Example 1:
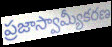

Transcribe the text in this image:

ప్రజాస్వామ్యీకరణ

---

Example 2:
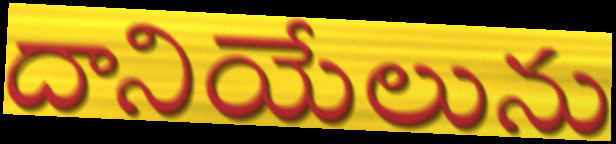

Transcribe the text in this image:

దానియేలును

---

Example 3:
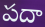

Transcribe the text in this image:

పదా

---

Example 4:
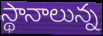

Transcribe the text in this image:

స్థానాలున్న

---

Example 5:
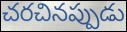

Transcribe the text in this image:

చరచినప్పుడు